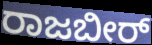
ರಾಜಬೀರ್